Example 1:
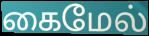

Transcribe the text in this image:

கைமேல்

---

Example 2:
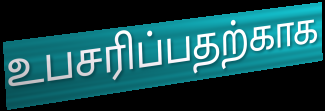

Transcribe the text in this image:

உபசரிப்பதற்காக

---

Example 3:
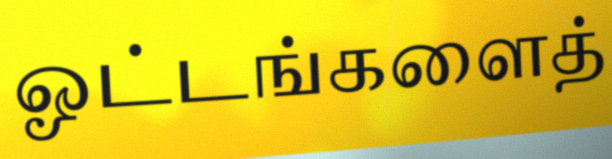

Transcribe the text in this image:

ஓட்டங்களைத்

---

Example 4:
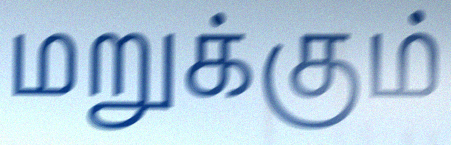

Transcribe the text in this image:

மறுக்கும்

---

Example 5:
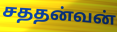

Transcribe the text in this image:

சததன்வன்